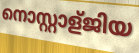
നൊസ്റ്റാള്ജിയ